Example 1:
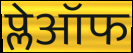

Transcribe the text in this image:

प्लेऑफ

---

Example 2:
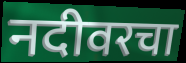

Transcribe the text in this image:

नदीवरचा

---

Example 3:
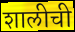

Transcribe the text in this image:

शालीची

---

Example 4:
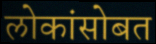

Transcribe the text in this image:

लोकांसोबत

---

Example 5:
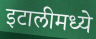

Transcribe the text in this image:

इटालीमध्ये